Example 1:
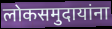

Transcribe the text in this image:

लोकसमुदायांना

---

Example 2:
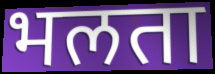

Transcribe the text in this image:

भलता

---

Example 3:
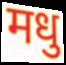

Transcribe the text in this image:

मधु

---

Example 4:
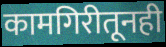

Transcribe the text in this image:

कामगिरीतूनही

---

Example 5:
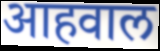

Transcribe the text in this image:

आहवाल